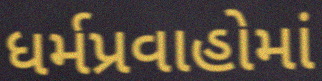
ધર્મપ્રવાહોમાં